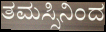
ತಮಸ್ಸಿನಿಂದ